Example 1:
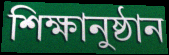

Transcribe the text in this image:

শিক্ষানুষ্ঠান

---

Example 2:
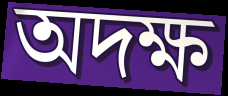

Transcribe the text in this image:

অদক্ষ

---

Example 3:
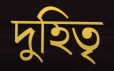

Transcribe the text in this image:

দুহিতৃ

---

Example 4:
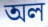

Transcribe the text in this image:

অল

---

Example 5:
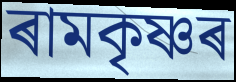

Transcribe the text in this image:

ৰামকৃষ্ণৰ